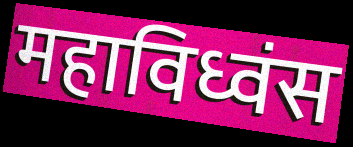
महाविध्वंस